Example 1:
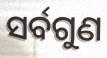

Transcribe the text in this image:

ସର୍ବଗୁଣ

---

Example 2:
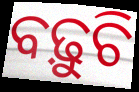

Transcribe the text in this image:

ବଢ଼ୁଚି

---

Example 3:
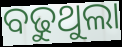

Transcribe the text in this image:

ବଢୁଥୁଲା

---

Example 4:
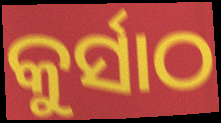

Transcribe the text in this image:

କୁର୍ସାଠ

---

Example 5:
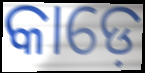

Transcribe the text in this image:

କାଡ଼େ